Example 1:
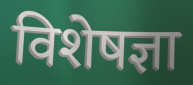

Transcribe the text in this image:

विशेषज्ञा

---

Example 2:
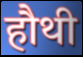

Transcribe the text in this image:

हौथी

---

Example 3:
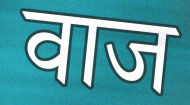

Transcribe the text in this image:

वाज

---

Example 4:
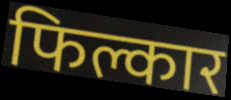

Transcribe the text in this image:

फिल्कार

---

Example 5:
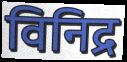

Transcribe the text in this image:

विनिद्र